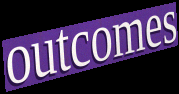
outcomes